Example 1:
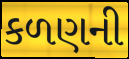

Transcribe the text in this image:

કળણની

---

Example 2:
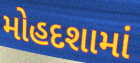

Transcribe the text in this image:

મોહદશામાં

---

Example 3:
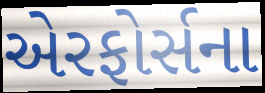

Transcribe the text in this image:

એરફોર્સના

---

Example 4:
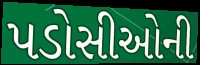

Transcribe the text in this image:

પડોસીઓની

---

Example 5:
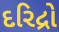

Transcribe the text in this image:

દરિદ્રો